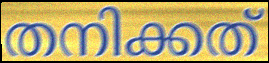
തനിക്കത്